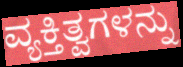
ವ್ಯಕ್ತಿತ್ವಗಳನ್ನು